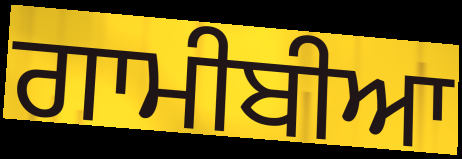
ਗਾਮੀਬੀਆ